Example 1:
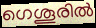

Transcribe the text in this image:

ഗെശൂരിൽ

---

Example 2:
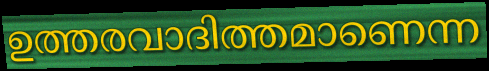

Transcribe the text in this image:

ഉത്തരവാദിത്തമാണെന്ന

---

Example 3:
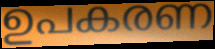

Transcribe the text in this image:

ഉപകരണ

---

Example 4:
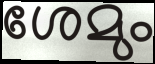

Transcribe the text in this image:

ശേമും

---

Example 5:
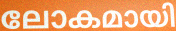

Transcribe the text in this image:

ലോകമായി